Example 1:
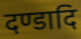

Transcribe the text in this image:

दण्डादि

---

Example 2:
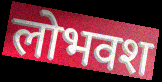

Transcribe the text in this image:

लोभवश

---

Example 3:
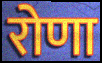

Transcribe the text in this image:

रोणा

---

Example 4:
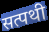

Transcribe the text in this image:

सत्पथी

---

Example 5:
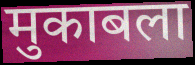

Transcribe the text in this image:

मुकाबला